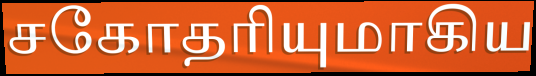
சகோதரியுமாகிய